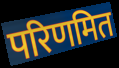
परिणमित